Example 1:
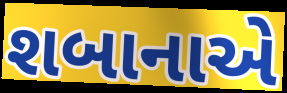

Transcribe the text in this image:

શબાનાએ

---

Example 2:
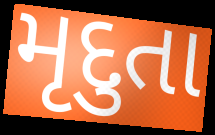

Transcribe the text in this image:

મૃદુતા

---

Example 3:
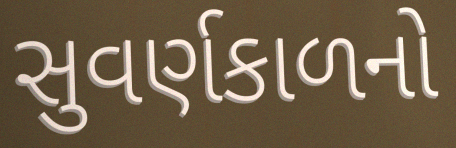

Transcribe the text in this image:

સુવર્ણકાળનો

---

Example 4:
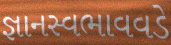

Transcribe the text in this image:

જ્ઞાનસ્વભાવવડે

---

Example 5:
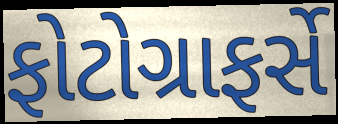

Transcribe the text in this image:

ફોટોગ્રાફર્સે